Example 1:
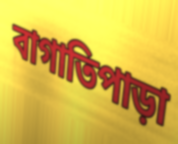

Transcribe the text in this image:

বাগাতিপাড়া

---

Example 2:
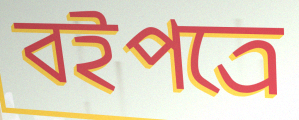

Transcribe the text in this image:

বইপত্রে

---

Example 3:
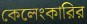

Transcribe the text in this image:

কেলেংকারির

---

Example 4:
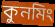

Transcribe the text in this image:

কুনমিং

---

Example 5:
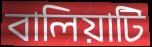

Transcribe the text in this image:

বালিয়াটি